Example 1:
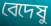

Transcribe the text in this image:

বেদেষু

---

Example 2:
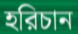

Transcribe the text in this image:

হরিচান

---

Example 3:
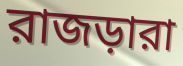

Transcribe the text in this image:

রাজড়ারা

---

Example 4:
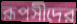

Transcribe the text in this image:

রূপসীদের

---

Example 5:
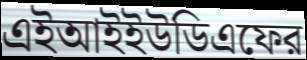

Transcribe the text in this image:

এইআইইউডিএফের